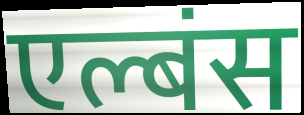
एल्बंस